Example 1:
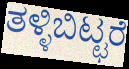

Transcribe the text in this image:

ತಳ್ಳಿಬಿಟ್ಟರೆ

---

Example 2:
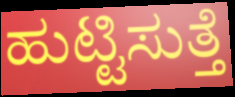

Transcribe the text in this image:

ಹುಟ್ಟಿಸುತ್ತೆ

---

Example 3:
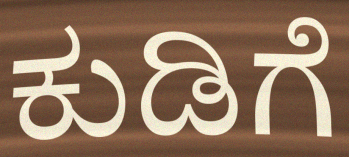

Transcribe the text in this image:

ಕುಡಿಗೆ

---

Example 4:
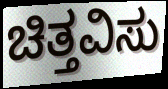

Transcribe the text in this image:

ಚಿತ್ತವಿಸು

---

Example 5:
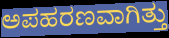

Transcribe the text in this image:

ಅಪಹರಣವಾಗಿತ್ತು